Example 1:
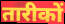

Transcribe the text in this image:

तारीकों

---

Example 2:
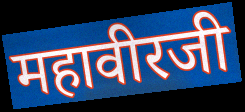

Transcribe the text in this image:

महावीरजी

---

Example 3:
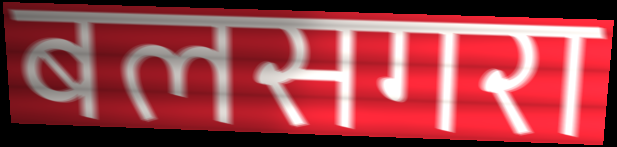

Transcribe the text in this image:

बलसगरा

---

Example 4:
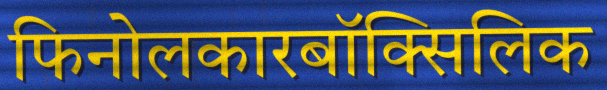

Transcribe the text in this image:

फिनोलकारबॉक्सिलिक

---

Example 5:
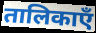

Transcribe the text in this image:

तालिकाएँ